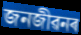
জনজীৱনৰ